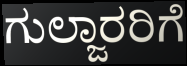
ಗುಲ್ಜಾರರಿಗೆ